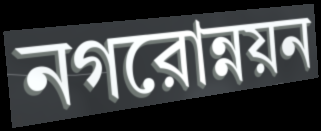
নগরোন্নয়ন